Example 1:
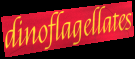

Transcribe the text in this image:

dinoflagellates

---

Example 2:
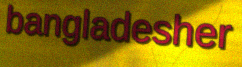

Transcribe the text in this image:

bangladesher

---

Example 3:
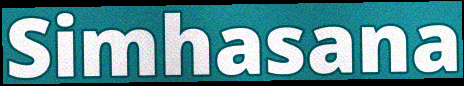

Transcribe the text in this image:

Simhasana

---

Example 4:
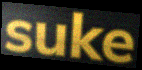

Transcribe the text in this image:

suke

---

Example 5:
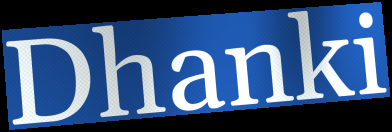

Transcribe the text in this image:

Dhanki